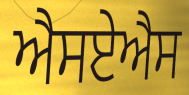
ਐਸਏਐਸ